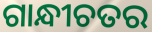
ଗାନ୍ଧୀଚତର